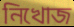
নিখোজ